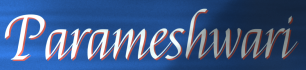
Parameshwari